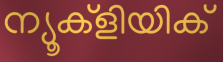
ന്യൂക്ളിയിക്